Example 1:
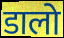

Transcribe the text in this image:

डालो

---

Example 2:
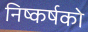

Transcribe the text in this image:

निष्कर्षको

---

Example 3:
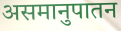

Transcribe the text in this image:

असमानुपातन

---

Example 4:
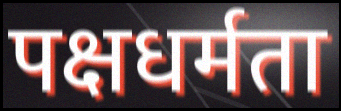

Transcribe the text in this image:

पक्षधर्मता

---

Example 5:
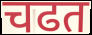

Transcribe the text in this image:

चढत